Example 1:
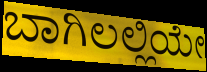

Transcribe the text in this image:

ಬಾಗಿಲಲ್ಲಿಯೇ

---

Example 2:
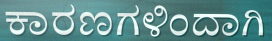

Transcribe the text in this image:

ಕಾರಣಗಳಿಂದಾಗಿ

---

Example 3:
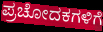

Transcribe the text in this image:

ಪ್ರಚೋದಕಗಳಿಗೆ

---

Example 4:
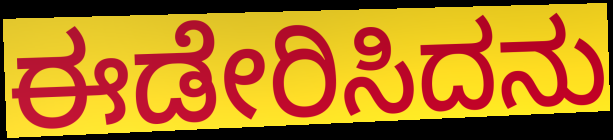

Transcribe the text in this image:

ಈಡೇರಿಸಿದನು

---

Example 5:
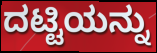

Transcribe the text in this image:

ದಟ್ಟಿಯನ್ನು